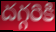
దగ్గరికి